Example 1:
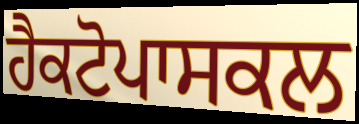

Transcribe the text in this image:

ਹੈਕਟੋਪਾਸਕਲ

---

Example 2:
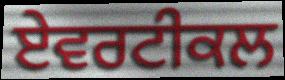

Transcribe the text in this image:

ਏਵਰਟੀਕਲ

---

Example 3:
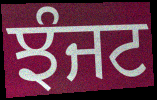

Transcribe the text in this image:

ਝੰਜਟ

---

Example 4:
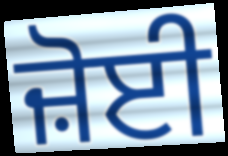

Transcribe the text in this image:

ਜ਼ੋਈ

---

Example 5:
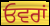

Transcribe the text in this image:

ਓਵਰਾਂ